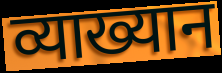
व्‍याख्‍यान